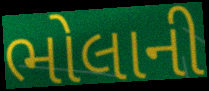
ભોલાની